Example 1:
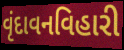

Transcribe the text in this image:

વૃંદાવનવિહારી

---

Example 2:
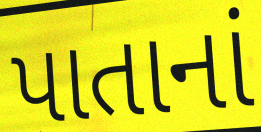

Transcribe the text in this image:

પાતાનાં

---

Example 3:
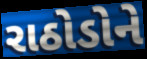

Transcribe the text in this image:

રાઠોડોને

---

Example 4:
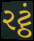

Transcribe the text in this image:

રટ્ઠં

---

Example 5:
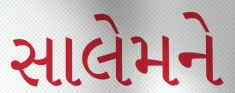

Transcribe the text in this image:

સાલેમને